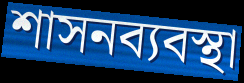
শাসনব্যবস্থা